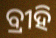
ବ୍ରୀହି